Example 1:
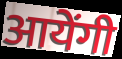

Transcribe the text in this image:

आयेंगी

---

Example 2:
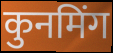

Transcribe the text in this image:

कुनमिंग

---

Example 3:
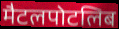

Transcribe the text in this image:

मैटलपोटलिब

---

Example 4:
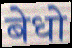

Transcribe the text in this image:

बेधो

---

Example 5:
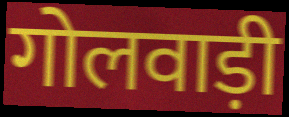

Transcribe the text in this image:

गोलवाड़ी